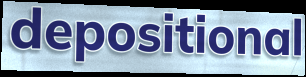
depositional